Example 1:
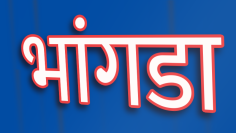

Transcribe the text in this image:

भांगडा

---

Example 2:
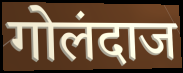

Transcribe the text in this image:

गोलंदाज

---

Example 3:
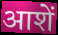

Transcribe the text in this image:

आशें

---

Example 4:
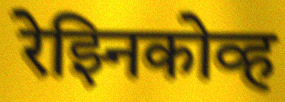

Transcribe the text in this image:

रेझ्निकोव्ह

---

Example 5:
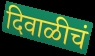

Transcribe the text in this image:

दिवाळीचं